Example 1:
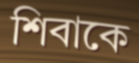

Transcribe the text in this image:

শিবাকে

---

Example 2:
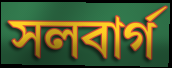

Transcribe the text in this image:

সলবার্গ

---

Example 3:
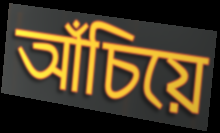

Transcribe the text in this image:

আঁচিয়ে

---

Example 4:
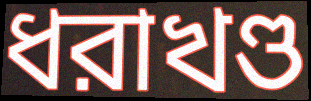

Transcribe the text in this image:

ধরাখণ্ড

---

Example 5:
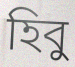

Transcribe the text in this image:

হিবু